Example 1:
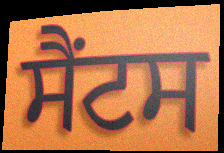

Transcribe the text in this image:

ਸੈਂਟਸ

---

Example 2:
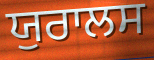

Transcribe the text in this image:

ਯੁਰਾਲਸ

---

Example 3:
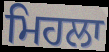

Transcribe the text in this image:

ਮਿਹਲਾ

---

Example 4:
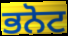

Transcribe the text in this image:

ਭਨੋਟ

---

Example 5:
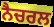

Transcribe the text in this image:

ਨੈਚਰਲ